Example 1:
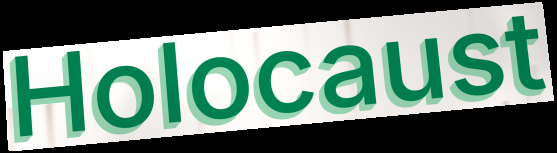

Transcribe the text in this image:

Holocaust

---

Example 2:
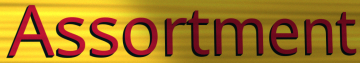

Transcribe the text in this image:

Assortment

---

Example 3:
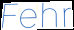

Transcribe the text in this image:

Fehr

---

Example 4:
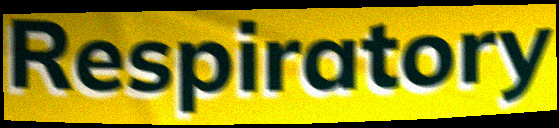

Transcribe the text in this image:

Respiratory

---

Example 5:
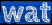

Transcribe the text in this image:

wat